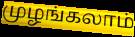
முழங்கலாம்